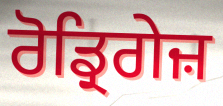
ਰੋਡ੍ਰਿਗੇਜ਼